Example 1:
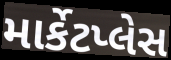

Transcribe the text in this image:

માર્કેટપ્લેસ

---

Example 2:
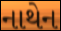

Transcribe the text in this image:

નાથેન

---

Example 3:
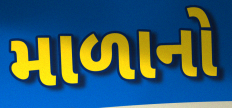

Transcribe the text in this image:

માળાનો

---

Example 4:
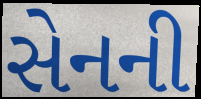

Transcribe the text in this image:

સેનની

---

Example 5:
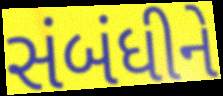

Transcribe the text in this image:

સંબંધીને